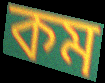
কম